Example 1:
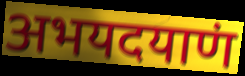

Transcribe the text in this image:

अभयदयाणं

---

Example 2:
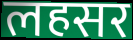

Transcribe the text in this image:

लहसर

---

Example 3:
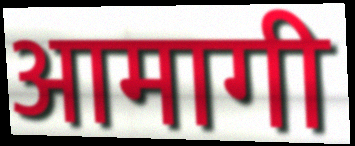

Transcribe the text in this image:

आमागी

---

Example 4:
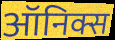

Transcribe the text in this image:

ऑनिक्स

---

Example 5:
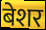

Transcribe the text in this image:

बेशर